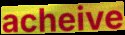
acheive